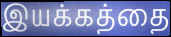
இயக்கத்தை